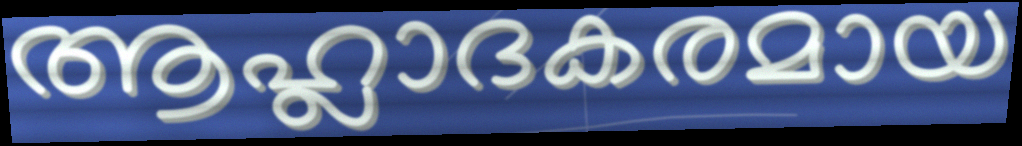
ആഹ്ലാദകരമായ